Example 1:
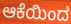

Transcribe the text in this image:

ಆಕೆಯಿಂದ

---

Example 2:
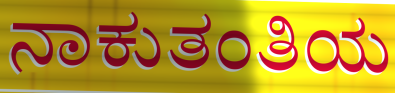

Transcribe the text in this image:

ನಾಕುತಂತಿಯ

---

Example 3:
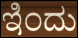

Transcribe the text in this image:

ಇಿಂದು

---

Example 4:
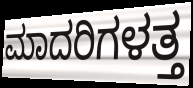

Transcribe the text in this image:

ಮಾದರಿಗಳತ್ತ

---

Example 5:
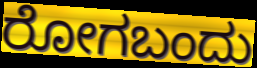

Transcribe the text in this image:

ರೋಗಬಂದು